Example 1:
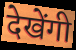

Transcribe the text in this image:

देखेंगी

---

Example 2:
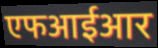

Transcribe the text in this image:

एफआईआर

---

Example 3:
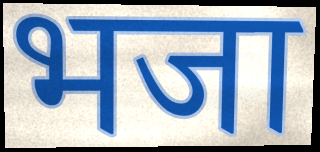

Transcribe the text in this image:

भजा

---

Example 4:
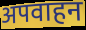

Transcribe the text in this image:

अपवाहन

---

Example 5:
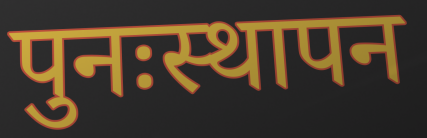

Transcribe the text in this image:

पुनःस्थापन